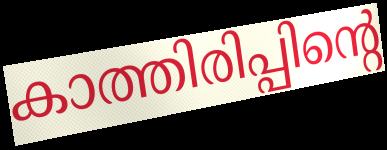
കാത്തിരിപ്പിന്റെ